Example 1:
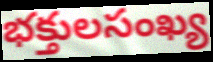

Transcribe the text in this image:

భక్తులసంఖ్య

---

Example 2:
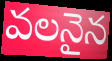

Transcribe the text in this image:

వలనైన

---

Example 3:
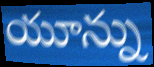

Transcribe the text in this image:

యూన్ను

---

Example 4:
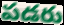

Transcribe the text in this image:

పడరు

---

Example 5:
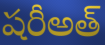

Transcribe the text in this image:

షరీఅత్